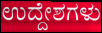
ಉದ್ದೇಶಗಳು